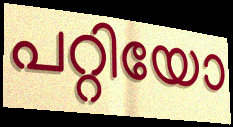
പറ്റിയോ